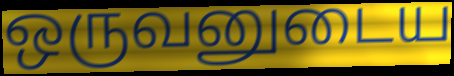
ஒருவனுடைய